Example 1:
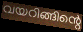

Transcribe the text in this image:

വയറിങ്ങിന്റെ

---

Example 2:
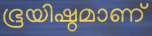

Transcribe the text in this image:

ഭൂയിഷ്ഠമാണ്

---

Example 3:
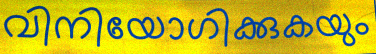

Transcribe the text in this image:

വിനിയോഗിക്കുകയും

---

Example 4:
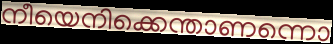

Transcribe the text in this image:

നീയെനിക്കെന്താണന്നൊ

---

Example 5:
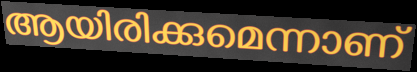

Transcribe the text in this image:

ആയിരിക്കുമെന്നാണ്